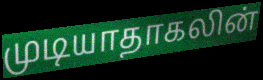
முடியாதாகலின்